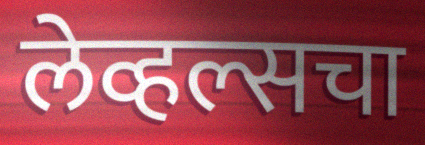
लेव्हल्सचा